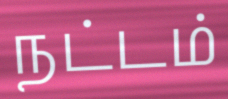
நட்டம்